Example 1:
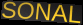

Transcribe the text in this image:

SONAL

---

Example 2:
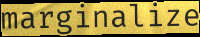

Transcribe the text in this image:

marginalize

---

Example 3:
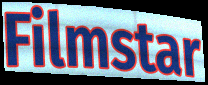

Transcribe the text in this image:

Filmstar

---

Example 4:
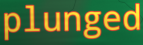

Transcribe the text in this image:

plunged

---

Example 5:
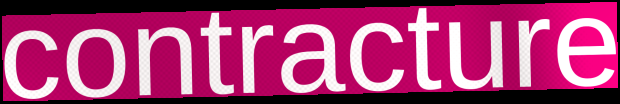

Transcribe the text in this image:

contracture